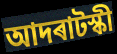
আদৰাটস্কী